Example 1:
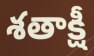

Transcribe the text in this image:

శతాక్షీ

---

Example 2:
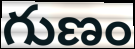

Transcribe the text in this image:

గుణం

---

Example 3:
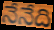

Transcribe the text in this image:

నేనేది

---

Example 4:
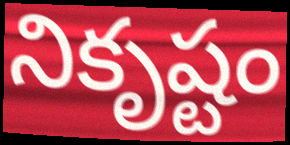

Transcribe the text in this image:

నికృష్టం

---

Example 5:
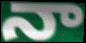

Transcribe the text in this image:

నా